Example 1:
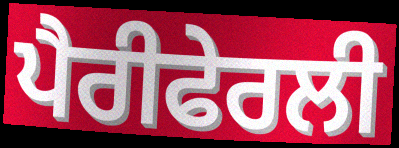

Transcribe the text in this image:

ਪੈਰੀਫੇਰਲੀ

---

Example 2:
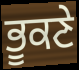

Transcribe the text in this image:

ਭੂਕਣੇ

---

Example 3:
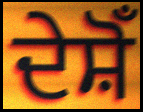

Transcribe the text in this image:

ਦੇਸ਼ੋਁ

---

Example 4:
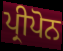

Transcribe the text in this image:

ਪ੍ਰੀਪੋਨ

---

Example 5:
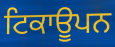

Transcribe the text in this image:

ਟਿਕਾਊਪਨ